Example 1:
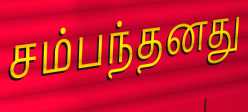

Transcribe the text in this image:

சம்பந்தனது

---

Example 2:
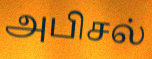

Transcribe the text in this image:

அபிசல்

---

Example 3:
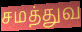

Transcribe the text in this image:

சமத்துவ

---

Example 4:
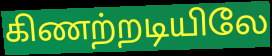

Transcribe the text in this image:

கிணற்றடியிலே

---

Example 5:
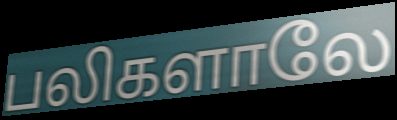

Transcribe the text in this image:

பலிகளாலே